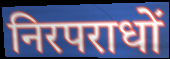
निरपराधों